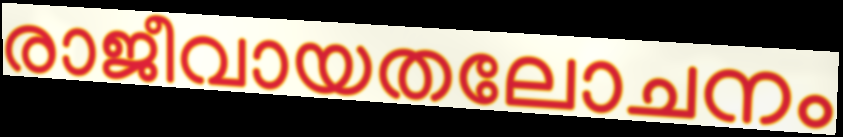
രാജീവായതലോചനം